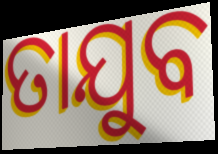
ତାଯୁବ